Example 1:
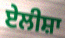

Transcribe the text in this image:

ਏਲੀਸ਼ਾ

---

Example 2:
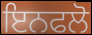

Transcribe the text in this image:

ਇਨਫਲੋ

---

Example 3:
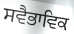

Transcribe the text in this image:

ਸਵੈਭਾਵਿਕ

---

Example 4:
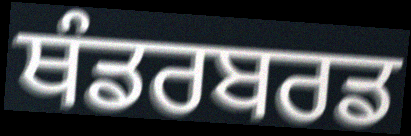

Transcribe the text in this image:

ਥੰਡਰਬਰਡ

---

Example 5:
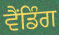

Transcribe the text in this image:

ਵੈਂਡਿੰਗ